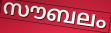
സൗബലം